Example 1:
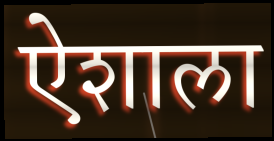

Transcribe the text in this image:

ऐशाला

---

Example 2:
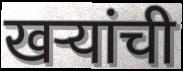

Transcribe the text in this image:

खऱ्यांची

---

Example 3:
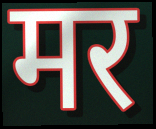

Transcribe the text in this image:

मर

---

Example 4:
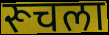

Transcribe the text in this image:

रूचला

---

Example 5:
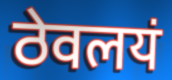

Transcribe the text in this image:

ठेवलयं